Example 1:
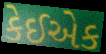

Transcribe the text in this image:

કેઈએક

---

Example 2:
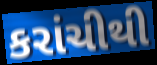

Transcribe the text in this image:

કરાંચીથી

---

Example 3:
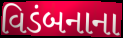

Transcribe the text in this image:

વિડંબનાના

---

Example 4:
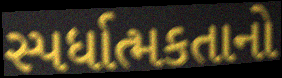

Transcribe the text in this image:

સ્પર્ધાત્મકતાનો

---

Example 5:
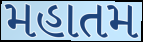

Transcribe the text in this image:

મહાતમ